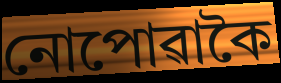
নোপোৱাকৈ